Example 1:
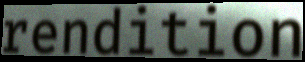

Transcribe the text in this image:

rendition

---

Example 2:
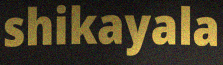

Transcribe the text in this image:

shikayala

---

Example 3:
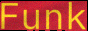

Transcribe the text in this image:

Funk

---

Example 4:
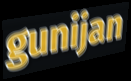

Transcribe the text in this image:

gunijan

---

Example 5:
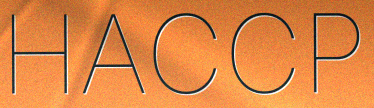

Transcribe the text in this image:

HACCP